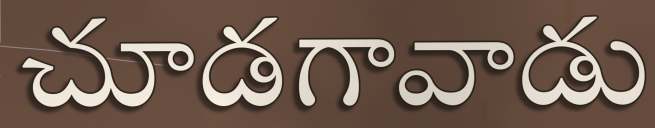
చూడగావాడు